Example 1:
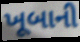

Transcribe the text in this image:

ખૂબાની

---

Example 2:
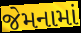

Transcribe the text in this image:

જેમનામાં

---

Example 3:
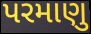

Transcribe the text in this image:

પરમાણુ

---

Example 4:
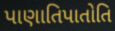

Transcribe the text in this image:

પાણાતિપાતોતિ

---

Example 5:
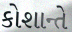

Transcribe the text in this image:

કોશાન્તે